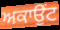
ਅਕਾਉਂਟ